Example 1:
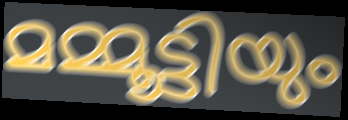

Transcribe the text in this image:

മമ്മൂട്ടിയും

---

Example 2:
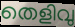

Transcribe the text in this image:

തെളിവു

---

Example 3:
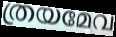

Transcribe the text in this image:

ത്രയമേവ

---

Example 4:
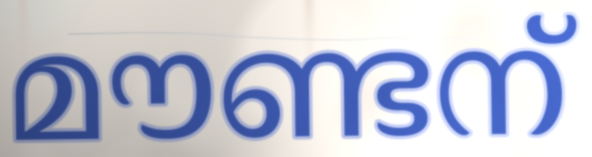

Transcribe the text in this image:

മൗണ്ടന്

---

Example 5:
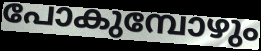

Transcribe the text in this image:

പോകുമ്പോഴും